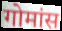
गोमांस